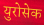
युरोसेक